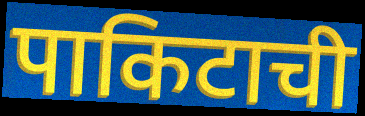
पाकिटाची